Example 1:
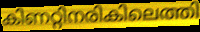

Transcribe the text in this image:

കിണറ്റിനരികിലെത്തി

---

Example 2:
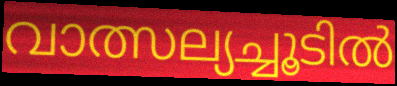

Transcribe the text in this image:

വാത്സല്യച്ചൂടിൽ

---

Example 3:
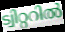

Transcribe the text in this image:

ട്വിറ്ററിൽ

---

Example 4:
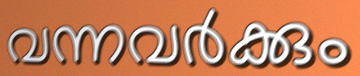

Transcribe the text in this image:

വന്നവർക്കും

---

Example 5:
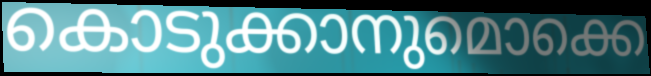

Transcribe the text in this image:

കൊടുക്കാനുമൊക്കെ